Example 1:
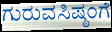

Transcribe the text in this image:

ಗುರುವಸಿಷ್ಠಂಗೆ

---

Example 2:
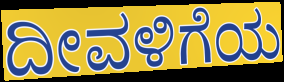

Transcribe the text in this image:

ದೀವಳಿಗೆಯ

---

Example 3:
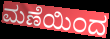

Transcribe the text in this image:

ಮಣೆಯಿಂದ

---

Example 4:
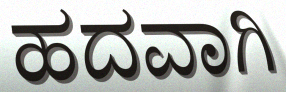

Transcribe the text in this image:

ಹದವಾಗಿ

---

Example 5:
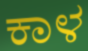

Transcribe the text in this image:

ಕಾಳ